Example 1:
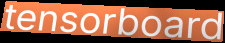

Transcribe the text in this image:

tensorboard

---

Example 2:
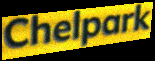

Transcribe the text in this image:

Chelpark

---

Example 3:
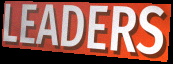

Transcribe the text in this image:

LEADERS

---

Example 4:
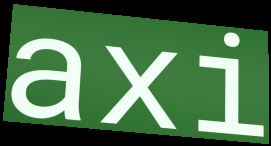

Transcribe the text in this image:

axi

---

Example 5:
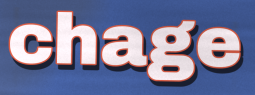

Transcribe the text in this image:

chage